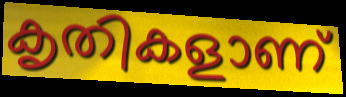
കൃതികളാണ്